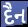
દૈન